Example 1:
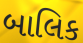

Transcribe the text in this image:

બાલિક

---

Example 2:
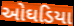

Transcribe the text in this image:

ઓઘડિયા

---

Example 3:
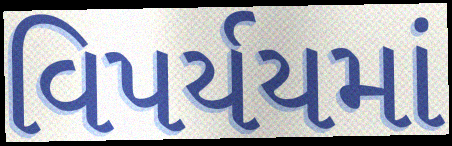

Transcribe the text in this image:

વિપર્યયમાં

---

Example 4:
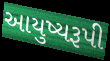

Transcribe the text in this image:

આયુષ્યરૂપી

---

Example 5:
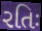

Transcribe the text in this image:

રતિઃ